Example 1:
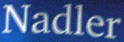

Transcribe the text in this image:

Nadler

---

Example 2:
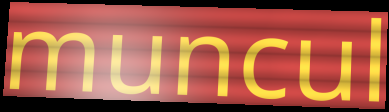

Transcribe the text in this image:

muncul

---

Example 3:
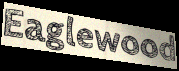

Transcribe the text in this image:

Eaglewood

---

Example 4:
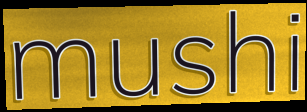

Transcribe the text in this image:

mushi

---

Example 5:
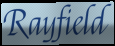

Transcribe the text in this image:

Rayfield